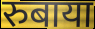
रुबाया